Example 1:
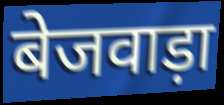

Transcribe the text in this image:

बेजवाड़ा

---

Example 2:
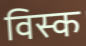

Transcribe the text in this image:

विस्क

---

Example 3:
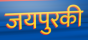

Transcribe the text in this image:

जयपुरकी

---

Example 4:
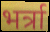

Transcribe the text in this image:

भर्त्रा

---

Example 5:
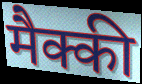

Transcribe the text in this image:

मैक्की